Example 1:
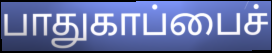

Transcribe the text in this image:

பாதுகாப்பைச்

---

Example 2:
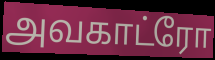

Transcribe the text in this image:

அவகாட்ரோ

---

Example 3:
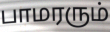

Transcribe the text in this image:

பாமரரும்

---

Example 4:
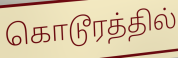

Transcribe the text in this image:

கொடூரத்தில்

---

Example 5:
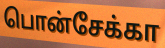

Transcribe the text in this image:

பொன்சேக்கா